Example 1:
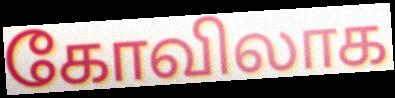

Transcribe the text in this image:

கோவிலாக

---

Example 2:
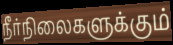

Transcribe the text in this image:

நீர்நிலைகளுக்கும்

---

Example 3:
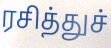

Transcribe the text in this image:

ரசித்துச்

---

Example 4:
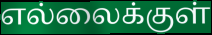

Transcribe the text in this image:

எல்லைக்குள்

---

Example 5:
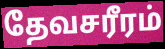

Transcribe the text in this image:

தேவசரீரம்